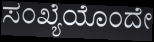
ಸಂಖ್ಯೆಯೊಂದೇ